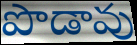
పొడావు